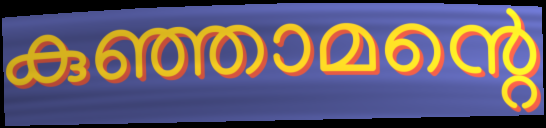
കുഞ്ഞാമന്റെ